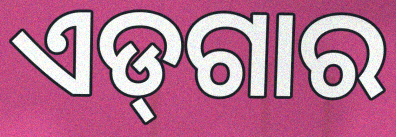
ଏଡ୍‌ଗାର